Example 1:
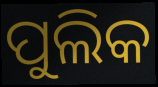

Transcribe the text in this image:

ପୁଲିକ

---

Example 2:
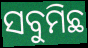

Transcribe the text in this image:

ସବୁମିଛ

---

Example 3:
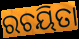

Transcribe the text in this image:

ରଚୟିତା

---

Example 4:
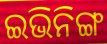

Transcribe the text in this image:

ଇଭିନିଙ୍ଗ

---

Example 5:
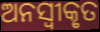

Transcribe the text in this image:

ଅନସ୍ବୀକୃତ